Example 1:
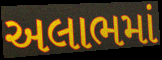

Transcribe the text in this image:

અલાભમાં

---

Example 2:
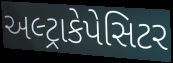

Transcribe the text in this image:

અલ્ટ્રાકેપેસિટર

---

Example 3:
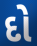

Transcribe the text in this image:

દો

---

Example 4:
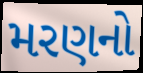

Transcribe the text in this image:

મરણનો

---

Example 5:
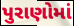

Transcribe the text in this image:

પુરાણોમાં